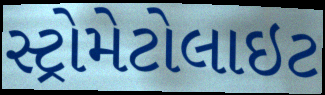
સ્ટ્રોમેટોલાઇટ